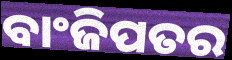
ବାଂଜିପତର